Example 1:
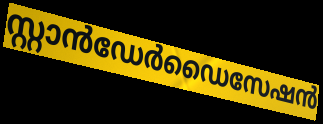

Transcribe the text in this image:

സ്റ്റാൻഡേർഡൈസേഷൻ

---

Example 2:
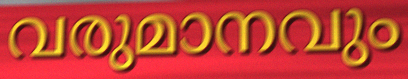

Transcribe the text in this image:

വരുമാനവും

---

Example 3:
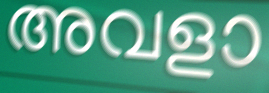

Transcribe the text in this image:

അവളാ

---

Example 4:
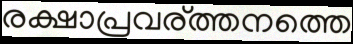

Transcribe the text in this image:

രക്ഷാപ്രവര്ത്തനത്തെ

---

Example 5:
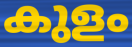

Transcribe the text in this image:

കുളം